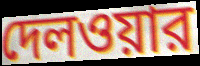
দেলওয়ার